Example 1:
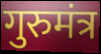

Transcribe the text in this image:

गुरुमंत्र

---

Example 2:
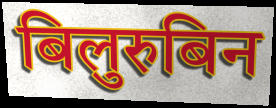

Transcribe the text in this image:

बिलुरुबिन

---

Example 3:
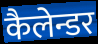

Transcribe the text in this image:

कैलेन्डर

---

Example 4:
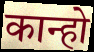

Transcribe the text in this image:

कान्हो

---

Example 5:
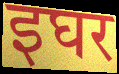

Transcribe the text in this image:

इघर